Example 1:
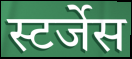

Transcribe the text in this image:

स्टर्जेस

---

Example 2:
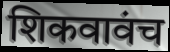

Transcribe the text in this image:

शिकवावंच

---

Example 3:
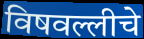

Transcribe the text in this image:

विषवल्लीचे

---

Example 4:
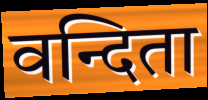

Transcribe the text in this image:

वन्दिता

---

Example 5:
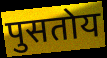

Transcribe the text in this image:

पुसतोय